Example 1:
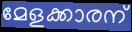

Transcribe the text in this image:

മേളക്കാരന്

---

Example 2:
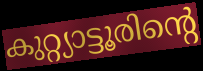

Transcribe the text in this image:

കുറ്റ്യാട്ടൂരിന്റെ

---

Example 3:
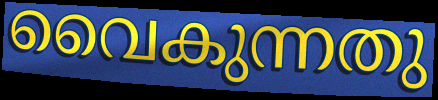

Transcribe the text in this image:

വൈകുന്നതു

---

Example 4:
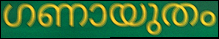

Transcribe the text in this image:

ഗണായുതം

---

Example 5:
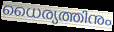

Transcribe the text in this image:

ധൈര്യത്തിനും